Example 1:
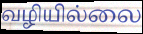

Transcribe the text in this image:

வழியில்லை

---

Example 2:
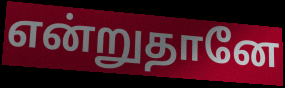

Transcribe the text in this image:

என்றுதானே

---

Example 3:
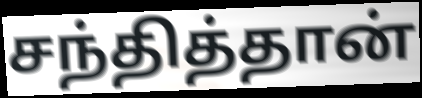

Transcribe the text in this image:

சந்தித்தான்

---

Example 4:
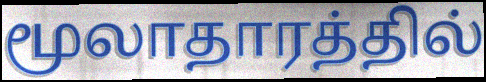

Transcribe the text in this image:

மூலாதாரத்தில்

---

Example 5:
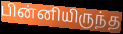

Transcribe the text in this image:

பின்னியிருந்த